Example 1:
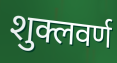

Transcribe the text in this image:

शुक्लवर्ण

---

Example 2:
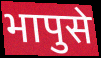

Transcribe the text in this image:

भापुसे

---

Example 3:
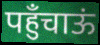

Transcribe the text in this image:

पहुँचाऊं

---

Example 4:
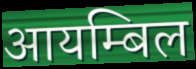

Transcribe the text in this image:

आयम्बिल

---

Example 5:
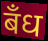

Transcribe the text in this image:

बँध